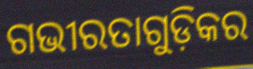
ଗଭୀରତାଗୁଡ଼ିକର